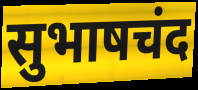
सुभाषचंद